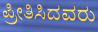
ಪ್ರೀತಿಸಿದವರು